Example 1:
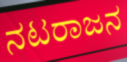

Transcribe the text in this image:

ನಟರಾಜನ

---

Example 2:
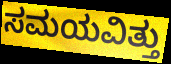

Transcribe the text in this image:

ಸಮಯವಿತ್ತು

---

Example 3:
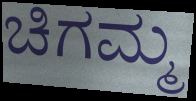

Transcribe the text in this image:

ಚಿಗಮ್ಮ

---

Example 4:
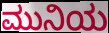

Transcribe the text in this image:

ಮುನಿಯ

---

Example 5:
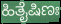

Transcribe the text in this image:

ಹಿತೈಷಿಣಃ